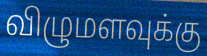
விழுமளவுக்கு